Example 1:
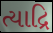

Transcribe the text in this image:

ત્યાદ્રિ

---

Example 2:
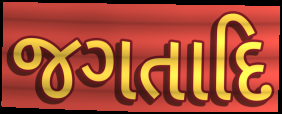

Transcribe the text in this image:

જગતાદિ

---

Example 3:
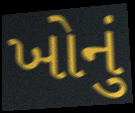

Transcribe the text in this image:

ખોનું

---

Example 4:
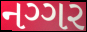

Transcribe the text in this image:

નગ્ગર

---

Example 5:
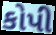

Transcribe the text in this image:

કોપી